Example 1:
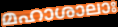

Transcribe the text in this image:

മഹാശാലാഃ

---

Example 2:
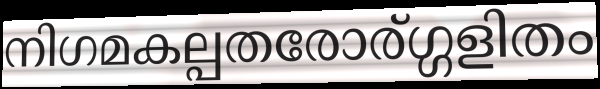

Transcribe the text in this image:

നിഗമകല്പതരോര്ഗ്ഗളിതം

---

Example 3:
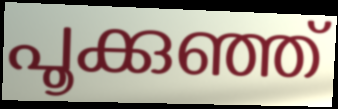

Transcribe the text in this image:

പൂക്കുഞ്ഞ്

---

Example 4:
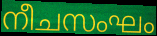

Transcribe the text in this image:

നീചസംഘം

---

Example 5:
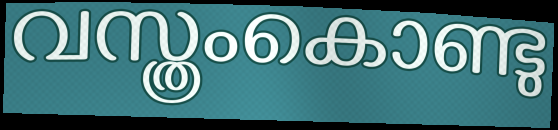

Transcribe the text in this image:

വസ്ത്രംകൊണ്ടു